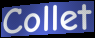
Collet